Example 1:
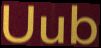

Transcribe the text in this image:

Uub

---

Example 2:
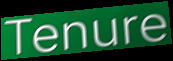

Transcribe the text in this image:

Tenure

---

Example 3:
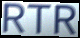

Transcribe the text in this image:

RTR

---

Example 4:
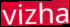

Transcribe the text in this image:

vizha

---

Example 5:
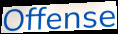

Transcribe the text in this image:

Offense